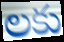
లకు